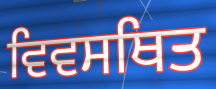
ਵਿਵਸਥਿਤ